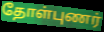
தோள்புணர்